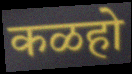
कळहो